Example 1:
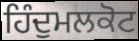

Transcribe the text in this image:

ਹਿੰਦੁਮਲਕੋਟ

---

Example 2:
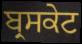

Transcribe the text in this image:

ਬ੍ਰਸਕੇਟ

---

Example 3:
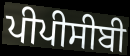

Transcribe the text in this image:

ਪੀਪੀਸੀਬੀ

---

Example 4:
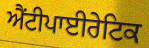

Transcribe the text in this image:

ਐਂਟੀਪਾਈਰੇਟਿਕ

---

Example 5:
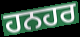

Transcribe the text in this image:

ਹਨਹਰ